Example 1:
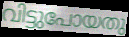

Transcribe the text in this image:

വിട്ടുപോയതു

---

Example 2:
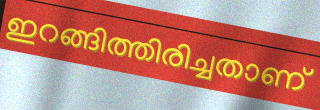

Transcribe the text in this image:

ഇറങ്ങിത്തിരിച്ചതാണ്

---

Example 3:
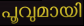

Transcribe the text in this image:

പൂവുമായി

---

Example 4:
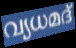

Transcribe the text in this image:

വ്യധമദ്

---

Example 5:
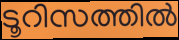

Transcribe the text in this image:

ടൂറിസത്തിൽ